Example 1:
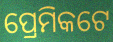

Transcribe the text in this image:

ପ୍ରେମିକଟେ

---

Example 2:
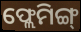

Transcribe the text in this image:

ଫ୍ଲେମିଙ୍ଗ୍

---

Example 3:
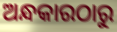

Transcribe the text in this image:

ଅନ୍ଧକାରଠାରୁ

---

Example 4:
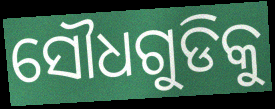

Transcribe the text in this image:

ସୌଧଗୁଡିକୁ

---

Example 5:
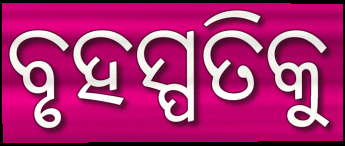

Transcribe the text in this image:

ବୃହସ୍ପତିକୁ